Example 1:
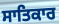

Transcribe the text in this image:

ਸਾਤਿਕਾਰ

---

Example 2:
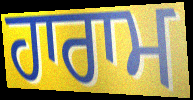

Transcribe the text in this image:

ਹਾਰਾਮ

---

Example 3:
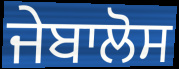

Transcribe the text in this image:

ਜੇਬਾਲੋਸ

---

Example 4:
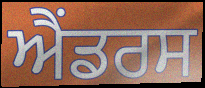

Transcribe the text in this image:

ਐਂਡਰਸ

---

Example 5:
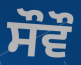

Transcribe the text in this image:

ਸੌਵੌ